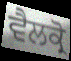
ਵੈਲਕ੍ਰੋ